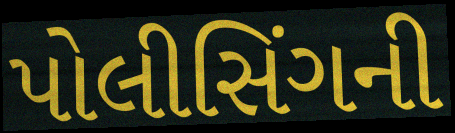
પોલીસિંગની